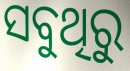
ସବୁଥିରୁ